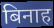
बिनाह